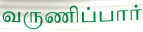
வருணிப்பார்